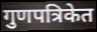
गुणपत्रिकेत